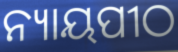
ନ୍ୟାୟପୀଠ